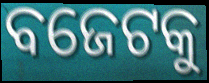
ବଜେଟକୁ